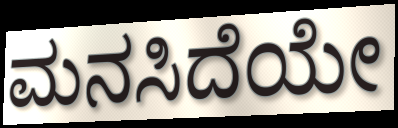
ಮನಸಿದೆಯೇ